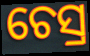
ଚେସ୍ର